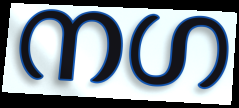
നഗ